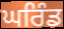
ਘਰਿੰਡ